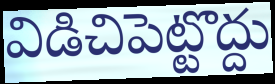
విడిచిపెట్టొద్దు